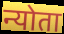
न्योता